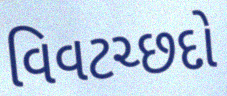
વિવટચ્છદો